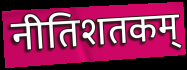
नीतिशतकम्